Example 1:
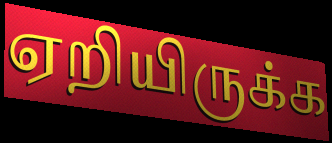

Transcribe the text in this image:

ஏறியிருக்க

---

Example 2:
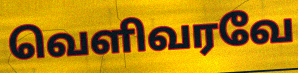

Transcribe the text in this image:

வெளிவரவே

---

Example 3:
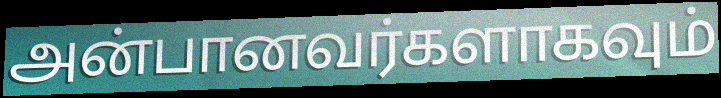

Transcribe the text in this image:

அன்பானவர்களாகவும்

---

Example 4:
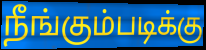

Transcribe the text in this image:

நீங்கும்படிக்கு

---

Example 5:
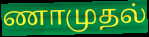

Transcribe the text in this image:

ணாமுதல்